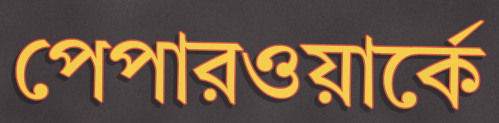
পেপারওয়ার্কে